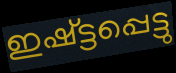
ഇഷ്ട്ടപ്പെട്ടു